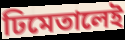
ঢিমেতালেই